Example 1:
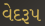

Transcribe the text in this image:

વેદરૂપ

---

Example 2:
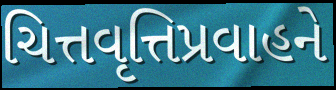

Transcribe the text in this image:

ચિત્તવૃત્તિપ્રવાહને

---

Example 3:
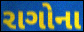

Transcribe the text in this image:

રાગોના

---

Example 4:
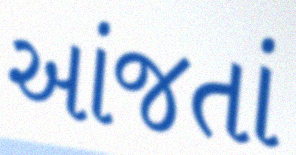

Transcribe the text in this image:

આંજતાં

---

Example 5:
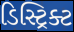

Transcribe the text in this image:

ડિસ્ટ્રિક્ટ